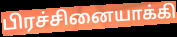
பிரச்சினையாக்கி